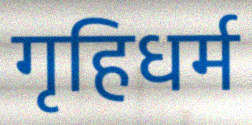
गृहिधर्म